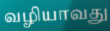
வழியாவது